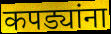
कपड्यांना